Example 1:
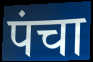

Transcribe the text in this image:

पंचा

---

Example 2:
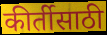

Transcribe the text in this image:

कीर्तीसाठी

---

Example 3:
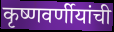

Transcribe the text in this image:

कृष्णवर्णीयांची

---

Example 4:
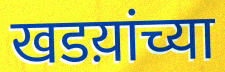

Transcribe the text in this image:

खडय़ांच्या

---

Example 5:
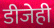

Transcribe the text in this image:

डीजेही